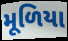
મૂળિયા